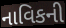
નાવિકની